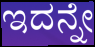
ಇದನ್ನೇ